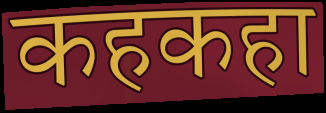
कहकहा